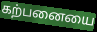
கற்பனையை